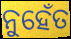
ନୁହେଁତ